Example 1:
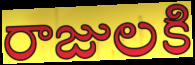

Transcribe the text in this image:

రాజులకి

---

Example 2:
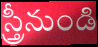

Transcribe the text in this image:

స్త్రీనుండి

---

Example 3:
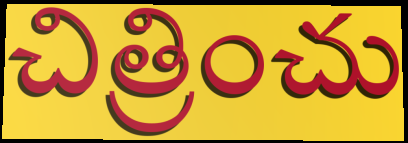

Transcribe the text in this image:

చిత్రించు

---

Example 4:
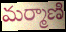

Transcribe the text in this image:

మర్మాణి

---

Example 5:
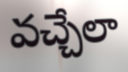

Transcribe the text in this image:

వచ్చేలా